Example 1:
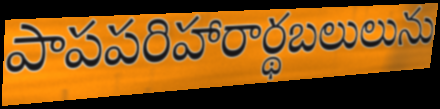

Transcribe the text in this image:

పాపపరిహారార్థబలులును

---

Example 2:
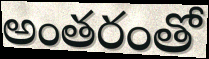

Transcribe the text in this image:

అంతరంతో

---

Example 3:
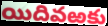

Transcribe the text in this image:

యిదివఱకు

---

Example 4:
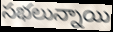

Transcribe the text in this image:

సభలున్నాయి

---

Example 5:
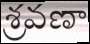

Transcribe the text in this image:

శ్రవణా